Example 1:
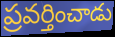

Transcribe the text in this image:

ప్రవర్తించాడు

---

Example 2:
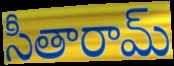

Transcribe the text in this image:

సీతారామ్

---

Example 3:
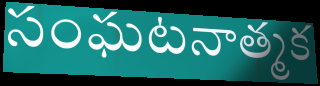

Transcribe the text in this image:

సంఘటనాత్మక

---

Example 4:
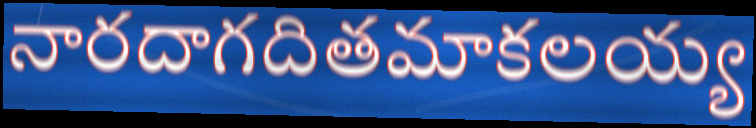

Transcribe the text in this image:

నారదాగదితమాకలయ్య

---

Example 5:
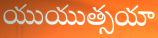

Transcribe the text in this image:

యుయుత్సయా